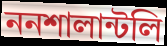
ননশালান্টলি